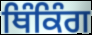
ਥਿੰਕਿੰਗ